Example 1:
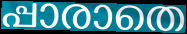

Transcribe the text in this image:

പ്പാരാതെ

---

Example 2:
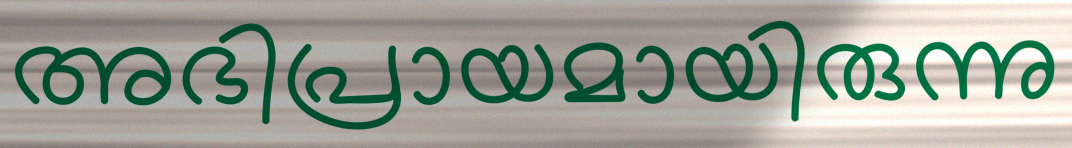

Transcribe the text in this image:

അഭിപ്രായമായിരുന്നു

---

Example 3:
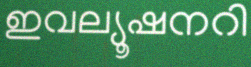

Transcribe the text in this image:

ഇവല്യൂഷനറി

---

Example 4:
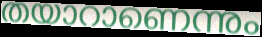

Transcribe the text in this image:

തയാറാണെന്നും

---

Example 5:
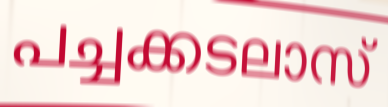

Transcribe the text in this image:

പച്ചക്കടലാസ്